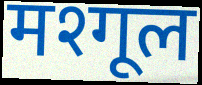
मश्गूल